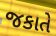
જકાતે